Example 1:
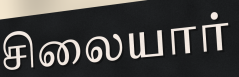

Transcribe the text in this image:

சிலையார்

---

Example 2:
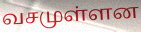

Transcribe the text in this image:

வசமுள்ளன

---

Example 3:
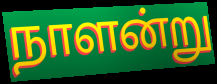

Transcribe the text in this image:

நாளன்று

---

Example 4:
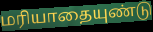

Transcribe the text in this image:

மரியாதையுண்டு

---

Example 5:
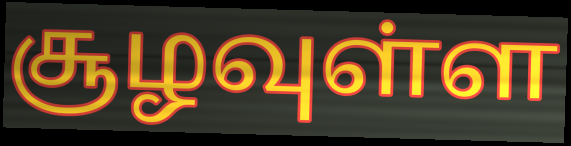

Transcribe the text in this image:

சூழவுள்ள